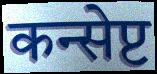
कन्सेप्ट